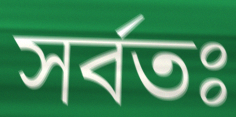
সর্বতঃ